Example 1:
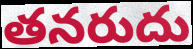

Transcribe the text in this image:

తనరుదు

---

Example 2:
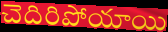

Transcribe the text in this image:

చెదిరిపోయాయి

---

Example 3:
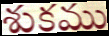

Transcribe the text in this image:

శుకము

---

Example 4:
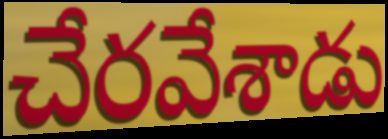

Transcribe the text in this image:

చేరవేశాడు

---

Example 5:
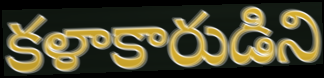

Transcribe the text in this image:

కళాకారుడిని